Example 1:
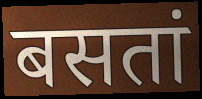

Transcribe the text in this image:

बसतां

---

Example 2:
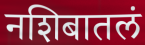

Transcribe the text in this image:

नशिबातलं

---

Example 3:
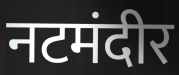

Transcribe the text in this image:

नटमंदीर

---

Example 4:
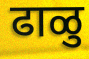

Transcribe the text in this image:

ढाळु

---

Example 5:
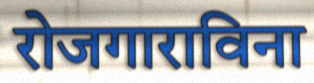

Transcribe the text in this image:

रोजगाराविना